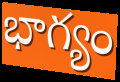
భాగ్యం